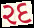
રદ